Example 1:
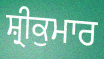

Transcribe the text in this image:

ਸ਼੍ਰੀਕੁਮਾਰ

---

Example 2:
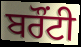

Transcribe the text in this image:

ਬਰੌਂਟੀ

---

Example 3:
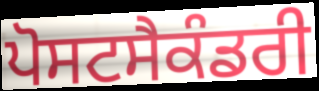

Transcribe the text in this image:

ਪੋਸਟਸੈਕੰਡਰੀ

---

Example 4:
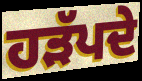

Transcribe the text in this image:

ਹੜੱਪਦੇ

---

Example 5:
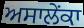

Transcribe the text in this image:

ਅਸਾਲੇਂਕਾ